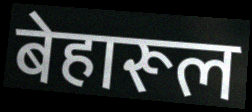
बेहारूल